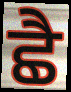
ਛੈ